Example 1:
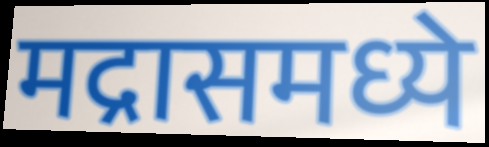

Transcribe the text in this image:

मद्रासमध्ये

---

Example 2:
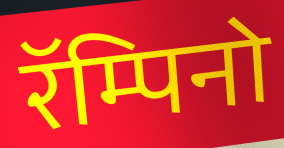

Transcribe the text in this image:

रॅम्पिनो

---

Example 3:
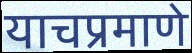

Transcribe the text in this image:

याचप्रमाणे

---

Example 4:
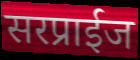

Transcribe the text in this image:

सरप्राईज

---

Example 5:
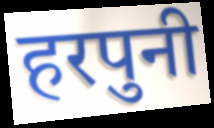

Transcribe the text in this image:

हरपुनी